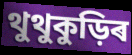
থুথুকুড়িৰ